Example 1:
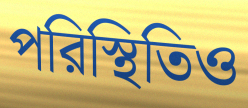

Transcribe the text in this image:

পরিস্থিতিও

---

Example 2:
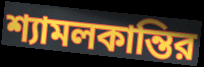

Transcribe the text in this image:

শ্যামলকান্তির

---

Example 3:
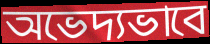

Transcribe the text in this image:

অভেদ্যভাবে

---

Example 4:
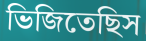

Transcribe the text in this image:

ভিজিতেছিস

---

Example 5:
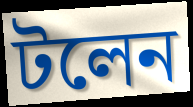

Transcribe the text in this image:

টলেন